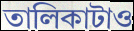
তালিকাটাও